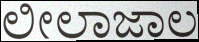
ಲೀಲಾಜಾಲ